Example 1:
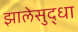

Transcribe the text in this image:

झालेसुद्धा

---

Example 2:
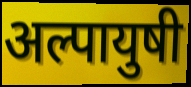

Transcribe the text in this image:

अल्पायुषी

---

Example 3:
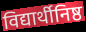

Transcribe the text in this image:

विद्यार्थीनिष्ठ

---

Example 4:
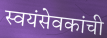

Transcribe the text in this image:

स्वयंसेवकांची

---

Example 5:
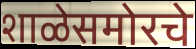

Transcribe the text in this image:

शाळेसमोरचे